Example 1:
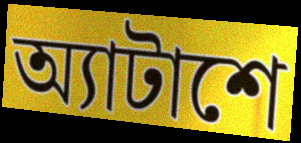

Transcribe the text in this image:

অ্যাটাশে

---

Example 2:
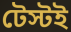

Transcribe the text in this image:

টেস্টই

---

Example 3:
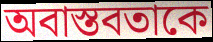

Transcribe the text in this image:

অবাস্তবতাকে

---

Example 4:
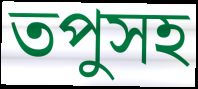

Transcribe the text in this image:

তপুসহ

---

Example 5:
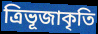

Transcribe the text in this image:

ত্রিভূজাকৃতি